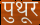
पुथूर